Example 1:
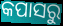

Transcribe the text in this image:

କପାସରୁ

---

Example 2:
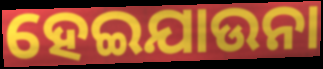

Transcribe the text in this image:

ହେଇଯାଉନା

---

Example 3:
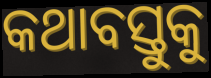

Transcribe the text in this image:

କଥାବସ୍ତୁକୁ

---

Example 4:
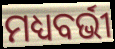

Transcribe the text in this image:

ମଧ୍ଯବର୍ଭୀ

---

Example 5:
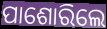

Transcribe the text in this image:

ପାଶୋରିଲେ